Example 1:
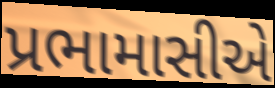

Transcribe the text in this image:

પ્રભામાસીએ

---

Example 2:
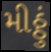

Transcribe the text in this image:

મીઠ્ઠું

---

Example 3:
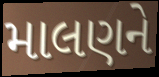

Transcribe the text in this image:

માલણને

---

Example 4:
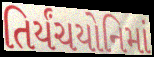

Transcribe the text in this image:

તિર્યંચયોનિમાં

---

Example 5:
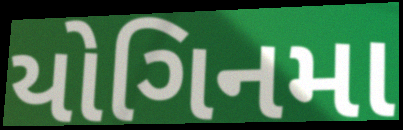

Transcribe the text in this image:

યોગિનમા